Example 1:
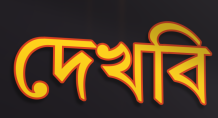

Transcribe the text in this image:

দেখবি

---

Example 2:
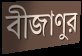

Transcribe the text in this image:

বীজাণুর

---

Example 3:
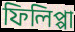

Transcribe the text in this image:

ফিলিপ্পা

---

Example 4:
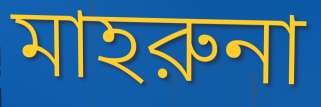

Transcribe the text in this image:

মাহরুনা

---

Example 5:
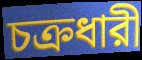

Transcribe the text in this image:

চক্রধারী